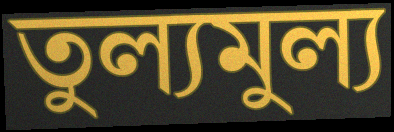
তুল্যমুল্য